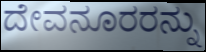
ದೇವನೂರರನ್ನು